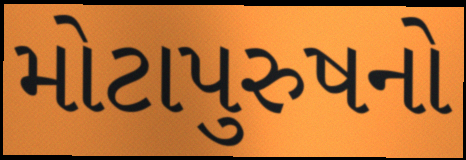
મોટાપુરુષનો